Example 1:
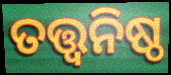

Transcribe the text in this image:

ତତ୍ତ୍ୱନିଷ୍ଠ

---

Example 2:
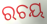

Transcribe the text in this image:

ରଚୟ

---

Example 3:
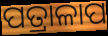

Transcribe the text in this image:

ପତ୍ରାଳାପ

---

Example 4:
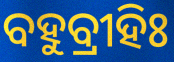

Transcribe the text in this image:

ବହୁବ୍ରୀହିଃ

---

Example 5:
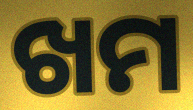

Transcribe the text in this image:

ଖମ